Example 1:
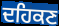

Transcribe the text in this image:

ਦਹਿਕਣ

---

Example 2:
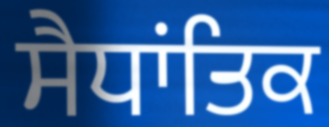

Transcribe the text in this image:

ਸੈਧਾਂਤਿਕ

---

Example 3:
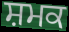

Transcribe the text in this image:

ਸ਼ਮਕ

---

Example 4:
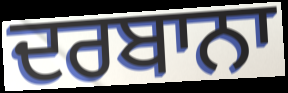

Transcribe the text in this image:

ਦਰਬਾਨਾ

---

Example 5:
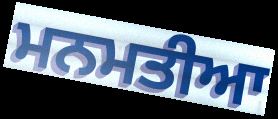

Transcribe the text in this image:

ਮਨਮਤੀਆ